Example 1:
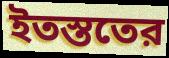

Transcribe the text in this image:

ইতস্ততের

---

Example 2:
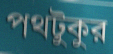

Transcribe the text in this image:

পথটুকুর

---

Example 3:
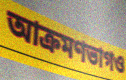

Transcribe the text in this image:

আক্রমণভাগও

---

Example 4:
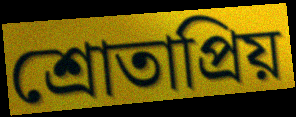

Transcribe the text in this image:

শ্রোতাপ্রিয়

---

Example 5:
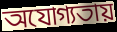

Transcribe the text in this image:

অযোগ্যতায়